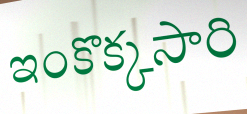
ఇంకొక్కసారి